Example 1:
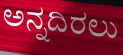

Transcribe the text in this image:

ಅನ್ನದಿರಲು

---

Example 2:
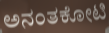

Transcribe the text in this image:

ಅನಂತಕೋಟಿ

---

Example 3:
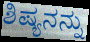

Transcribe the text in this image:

ಶಿಷ್ಯನನ್ನು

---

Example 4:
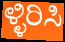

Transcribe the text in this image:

ಳ್ಳಿರಿಸಿ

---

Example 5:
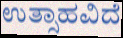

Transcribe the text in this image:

ಉತ್ಸಾಹವಿದೆ